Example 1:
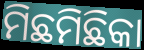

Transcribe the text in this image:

ମିଛମିଛିକା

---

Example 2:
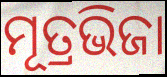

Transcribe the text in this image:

ମୂତ୍ରଭିଜା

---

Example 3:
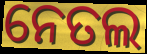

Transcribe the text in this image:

ନେତଲ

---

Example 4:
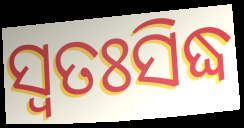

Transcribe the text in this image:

ସ୍ବତଃସିଦ୍ଧ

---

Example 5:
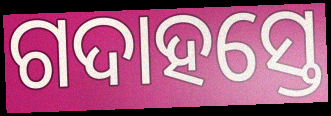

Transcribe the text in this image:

ଗଦାହସ୍ତେ